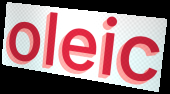
oleic